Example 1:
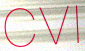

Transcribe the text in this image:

CVI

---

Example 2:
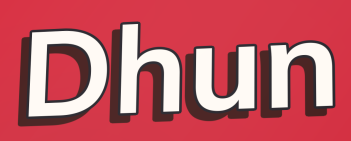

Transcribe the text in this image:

Dhun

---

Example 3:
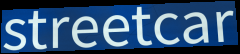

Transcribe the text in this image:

streetcar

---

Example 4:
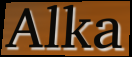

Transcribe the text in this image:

Alka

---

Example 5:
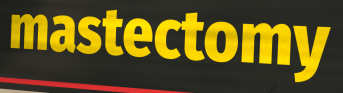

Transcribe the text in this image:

mastectomy